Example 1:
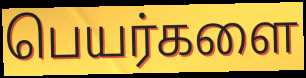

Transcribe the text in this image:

பெயர்களை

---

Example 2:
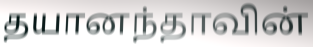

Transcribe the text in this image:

தயானந்தாவின்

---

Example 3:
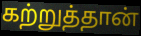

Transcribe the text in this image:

கற்றுத்தான்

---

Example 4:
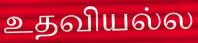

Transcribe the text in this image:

உதவியல்ல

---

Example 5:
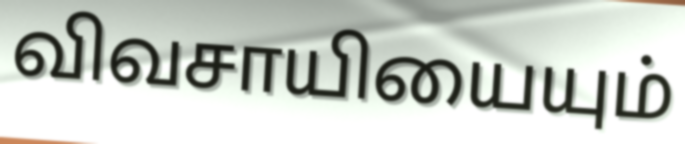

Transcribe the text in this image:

விவசாயியையும்